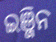
ଇଞ୍ଜିନ